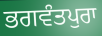
ਭਗਵੰਤਪੁਰਾ